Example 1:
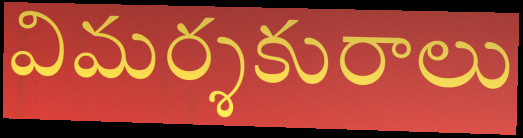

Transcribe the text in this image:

విమర్శకురాలు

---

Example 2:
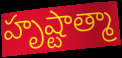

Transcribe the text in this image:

హృష్టాత్మా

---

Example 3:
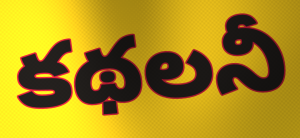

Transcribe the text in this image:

కథలనీ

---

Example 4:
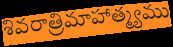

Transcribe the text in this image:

శివరాత్రిమాహాత్మ్యము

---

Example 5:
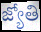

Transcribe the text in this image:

జ్యోతి